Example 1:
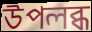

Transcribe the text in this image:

উপলব্ধ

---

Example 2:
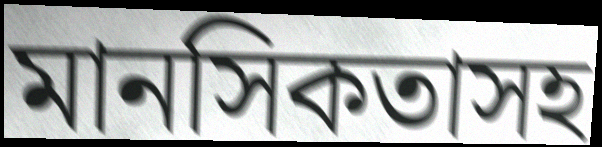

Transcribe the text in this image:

মানসিকতাসহ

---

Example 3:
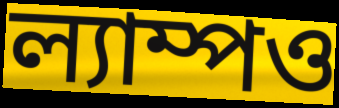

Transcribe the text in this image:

ল্যাম্পও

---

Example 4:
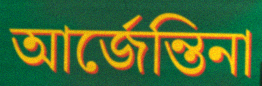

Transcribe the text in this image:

আর্জেন্তিনা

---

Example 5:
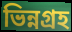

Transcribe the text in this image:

ভিন্নগ্রহ